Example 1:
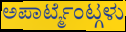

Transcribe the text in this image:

ಅಪಾರ್ಟ್ಮೆಂಟ್ಗಳು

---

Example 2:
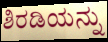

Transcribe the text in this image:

ಶಿರಡಿಯನ್ನು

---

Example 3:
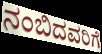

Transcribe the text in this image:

ನಂಬಿದವರಿಗೆ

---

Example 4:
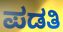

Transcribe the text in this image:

ಪಡತಿ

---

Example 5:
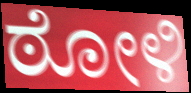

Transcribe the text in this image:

ಠೋಳಿ